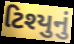
ટિશ્યુનું